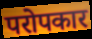
परोपकार